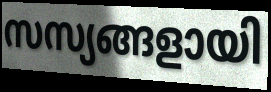
സസ്യങ്ങളായി